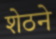
शेठने